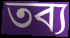
তব্য